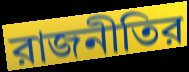
রাজনীতির